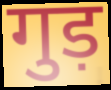
गुड़